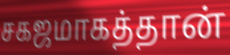
சகஜமாகத்தான்